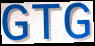
GTG